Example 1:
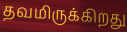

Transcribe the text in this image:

தவமிருக்கிறது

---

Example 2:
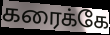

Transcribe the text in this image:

கரைக்கே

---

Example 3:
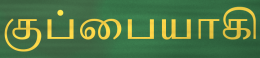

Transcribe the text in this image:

குப்பையாகி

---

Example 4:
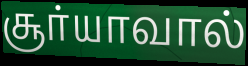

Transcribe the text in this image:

சூர்யாவால்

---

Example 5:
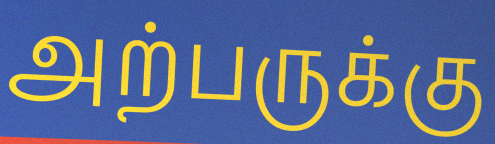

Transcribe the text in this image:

அற்பருக்கு